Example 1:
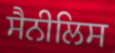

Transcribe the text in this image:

ਸੈਨੀਲਿਸ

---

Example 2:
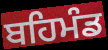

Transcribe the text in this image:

ਬਹਿਮੰਡ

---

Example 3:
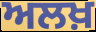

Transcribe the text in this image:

ਅਲਖ਼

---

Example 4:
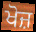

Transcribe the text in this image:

ਖੋਜ਼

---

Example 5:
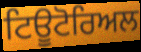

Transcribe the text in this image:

ਟਿਊਟੋਰਿਅਲ